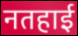
नतहाई